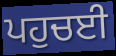
ਪਹੁਚਈ